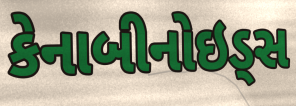
કેનાબીનોઇડ્સ